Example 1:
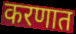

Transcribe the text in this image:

करणात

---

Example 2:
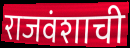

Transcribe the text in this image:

राजवंशाची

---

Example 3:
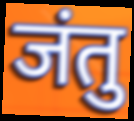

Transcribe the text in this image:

जंतु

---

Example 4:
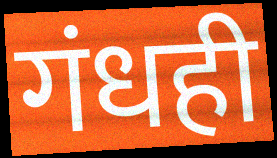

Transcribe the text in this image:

गंधही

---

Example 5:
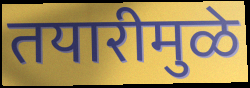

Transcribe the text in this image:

तयारीमुळे